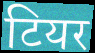
टियर